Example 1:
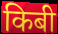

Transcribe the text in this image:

किबी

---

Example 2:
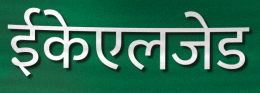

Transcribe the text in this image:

ईकेएलजेड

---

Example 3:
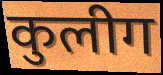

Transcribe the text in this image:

कुलीग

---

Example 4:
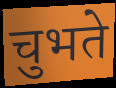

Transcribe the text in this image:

चुभते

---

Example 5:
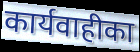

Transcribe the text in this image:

कार्यवाहीका